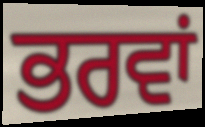
ਭਰਵਾਂ